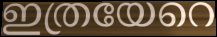
ഇത്രയേറെ